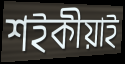
শইকীয়াই